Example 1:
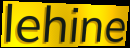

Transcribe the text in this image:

lehine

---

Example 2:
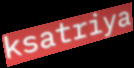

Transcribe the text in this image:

ksatriya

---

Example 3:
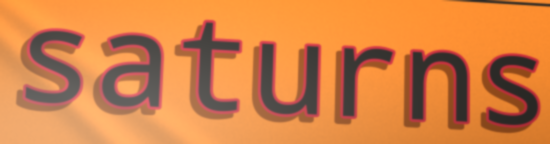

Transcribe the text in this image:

saturns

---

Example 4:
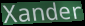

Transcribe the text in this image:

Xander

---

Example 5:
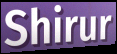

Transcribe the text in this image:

Shirur